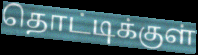
தொட்டிக்குள்